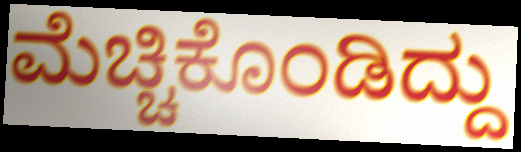
ಮೆಚ್ಚಿಕೊಂಡಿದ್ದು